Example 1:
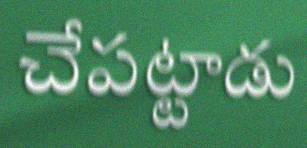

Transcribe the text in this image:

చేపట్టాడు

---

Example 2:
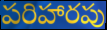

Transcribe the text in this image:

పరిహారపు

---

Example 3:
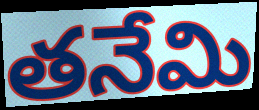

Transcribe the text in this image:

తనేమి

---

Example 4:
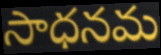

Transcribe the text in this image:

సాధనమ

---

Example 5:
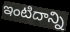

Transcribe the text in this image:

ఇంటిదాన్ని